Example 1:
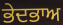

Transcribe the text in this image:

ਭੇਦਭਾਅ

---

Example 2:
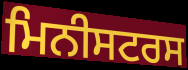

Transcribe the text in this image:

ਮਿਨੀਸਟਰਸ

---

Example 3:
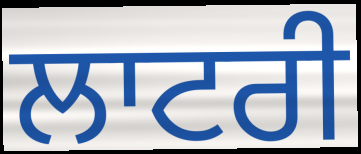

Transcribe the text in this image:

ਲਾਟਰੀ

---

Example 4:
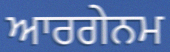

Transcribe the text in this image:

ਆਰਗੇਨਮ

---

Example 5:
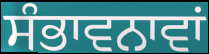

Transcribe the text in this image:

ਸੰਭਾਵਨਾਵਾਂ